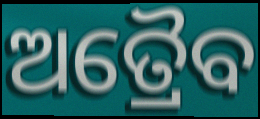
ଅତ୍ରୈବ